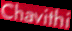
Chavithi